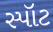
સ્પૉટ